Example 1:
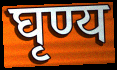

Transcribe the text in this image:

घृण्य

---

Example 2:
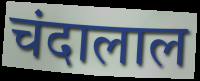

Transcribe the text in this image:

चंदालाल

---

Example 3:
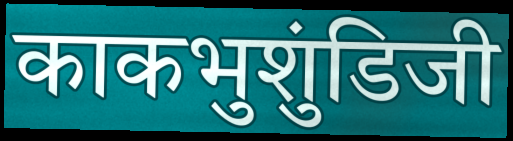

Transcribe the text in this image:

काकभुशुंडिजी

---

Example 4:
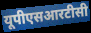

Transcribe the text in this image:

यूपीएसआरटीसी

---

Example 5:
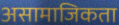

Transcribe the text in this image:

असामाजिकता